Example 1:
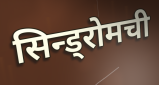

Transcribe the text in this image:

सिन्ड्रोमची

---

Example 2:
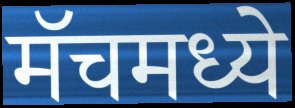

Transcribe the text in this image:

मॅचमध्ये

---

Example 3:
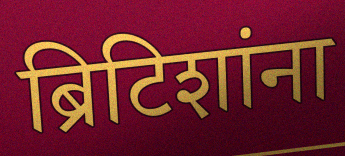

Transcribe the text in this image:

ब्रिटिशांना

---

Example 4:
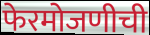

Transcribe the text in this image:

फेरमोजणीची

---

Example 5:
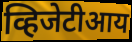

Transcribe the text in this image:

व्हिजेटीआय